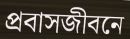
প্রবাসজীবনে